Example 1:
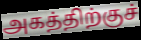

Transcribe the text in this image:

அகத்திற்குச்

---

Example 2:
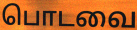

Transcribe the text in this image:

பொடவை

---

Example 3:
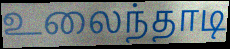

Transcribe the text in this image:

உலைந்தாடி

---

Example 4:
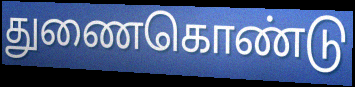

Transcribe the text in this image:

துணைகொண்டு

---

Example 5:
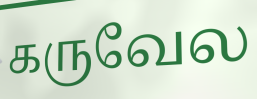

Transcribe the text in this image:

கருவேல